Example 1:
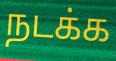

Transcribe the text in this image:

நடக்க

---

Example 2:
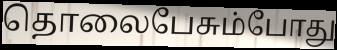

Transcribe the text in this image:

தொலைபேசும்போது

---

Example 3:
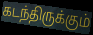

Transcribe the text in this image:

கடந்திருக்கும்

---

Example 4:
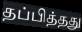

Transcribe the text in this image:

தப்பித்தது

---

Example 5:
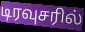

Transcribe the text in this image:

டிரவுசரில்